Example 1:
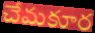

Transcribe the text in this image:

చేమకూర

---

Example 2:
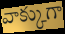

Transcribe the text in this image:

వాక్కుగా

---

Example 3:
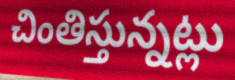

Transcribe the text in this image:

చింతిస్తున్నట్లు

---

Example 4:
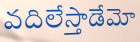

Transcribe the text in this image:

వదిలేస్తాడేమో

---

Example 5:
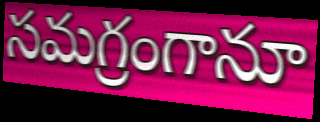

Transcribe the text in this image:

సమగ్రంగానూ